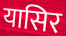
यासिर